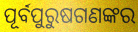
ପୂର୍ବପୁରୁଷଗଣଙ୍କର